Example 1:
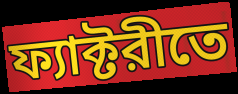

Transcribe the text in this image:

ফ্যাক্টরীতে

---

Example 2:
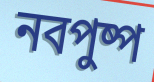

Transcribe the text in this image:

নবপুষ্প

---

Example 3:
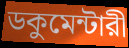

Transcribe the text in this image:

ডকুমেন্টারী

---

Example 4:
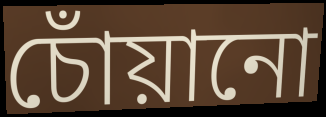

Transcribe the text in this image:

চোঁয়ানো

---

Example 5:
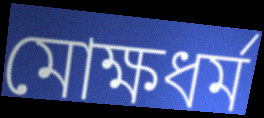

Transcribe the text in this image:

মোক্ষধর্ম